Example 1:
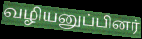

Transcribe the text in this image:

வழியனுப்பினர்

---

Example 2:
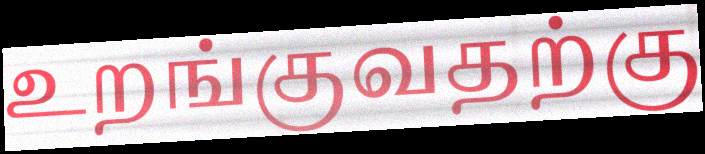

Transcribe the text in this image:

உறங்குவதற்கு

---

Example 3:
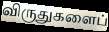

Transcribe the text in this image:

விருதுகளைப்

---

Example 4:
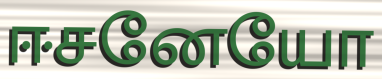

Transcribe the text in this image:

ஈசனேயோ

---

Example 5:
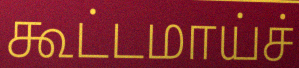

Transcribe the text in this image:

கூட்டமாய்ச்